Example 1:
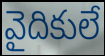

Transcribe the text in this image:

వైదికులే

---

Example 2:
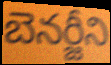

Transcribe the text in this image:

బెనర్జీని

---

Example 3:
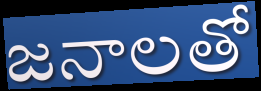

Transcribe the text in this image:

జనాలతో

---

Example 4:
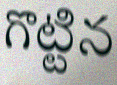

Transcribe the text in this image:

గొట్టిన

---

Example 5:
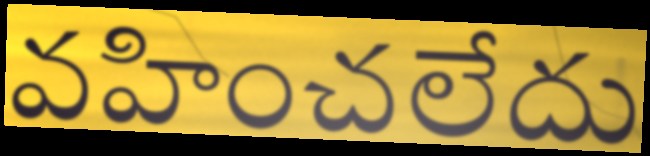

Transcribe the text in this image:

వహించలేదు